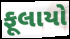
ફૂલાયો